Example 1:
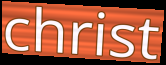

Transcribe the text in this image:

christ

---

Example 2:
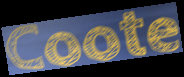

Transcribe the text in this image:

Coote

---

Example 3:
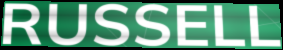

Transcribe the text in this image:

RUSSELL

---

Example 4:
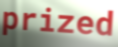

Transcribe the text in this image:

prized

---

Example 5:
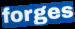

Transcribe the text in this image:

forges